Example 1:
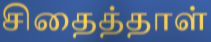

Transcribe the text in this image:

சிதைத்தாள்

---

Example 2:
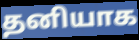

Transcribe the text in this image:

தனியாக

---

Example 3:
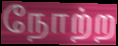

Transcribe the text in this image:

நோற்ற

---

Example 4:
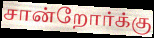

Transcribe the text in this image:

சான்றோர்க்கு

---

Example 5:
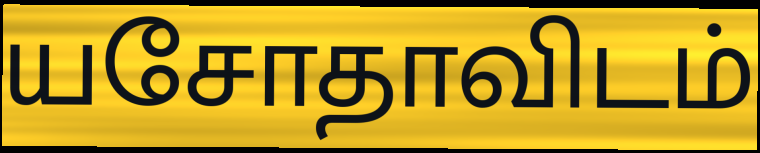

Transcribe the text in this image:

யசோதாவிடம்